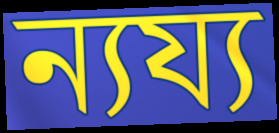
ন্যয্য